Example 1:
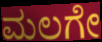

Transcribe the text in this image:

ಮಲಗೇ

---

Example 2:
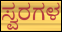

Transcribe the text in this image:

ಸ್ವರಗಳ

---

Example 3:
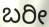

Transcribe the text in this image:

ಬರೀ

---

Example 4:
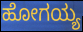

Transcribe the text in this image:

ಹೋಗಯ್ಯ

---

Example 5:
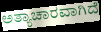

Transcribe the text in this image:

ಅತ್ಯಾಚಾರವಾಗಿದೆ